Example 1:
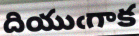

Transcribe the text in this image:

దియుఁగాక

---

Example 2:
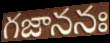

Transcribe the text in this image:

గజాననః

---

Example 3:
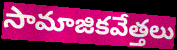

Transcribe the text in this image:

సామాజికవేత్తలు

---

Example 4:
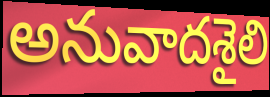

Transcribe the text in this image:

అనువాదశైలి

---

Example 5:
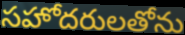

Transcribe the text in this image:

సహోదరులతోను